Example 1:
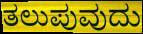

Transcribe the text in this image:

ತಲುಪುವುದು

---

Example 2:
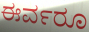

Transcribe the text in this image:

ಈರ್ವರೂ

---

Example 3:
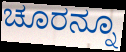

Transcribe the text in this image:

ಚೂರನ್ನೂ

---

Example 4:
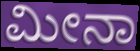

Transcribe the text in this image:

ಮೀನಾ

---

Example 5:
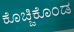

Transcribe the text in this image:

ಕೊಚ್ಚಿಕೊಂಡ